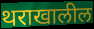
थराखालील